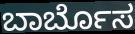
ಬಾರ್ಬೊಸ